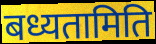
बध्यतामिति